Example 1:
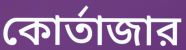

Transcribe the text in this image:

কোর্তাজার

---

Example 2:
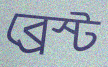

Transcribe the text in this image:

ব্রেস্ট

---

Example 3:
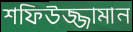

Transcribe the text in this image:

শফিউজ্জামান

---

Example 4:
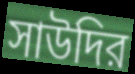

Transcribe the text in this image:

সাউদির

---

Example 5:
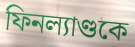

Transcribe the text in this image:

ফিনল্যাণ্ডকে